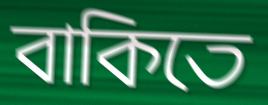
বাকিতে